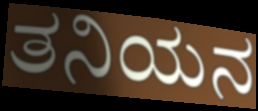
ತನಿಯನ